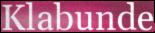
Klabunde